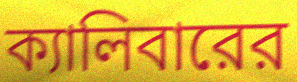
ক্যালিবারের